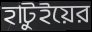
হাটুইয়ের